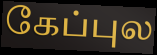
கேப்புல